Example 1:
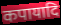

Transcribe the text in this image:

कपायादि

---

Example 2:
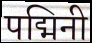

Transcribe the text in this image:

पद्मिनी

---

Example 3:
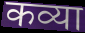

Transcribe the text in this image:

कव्या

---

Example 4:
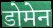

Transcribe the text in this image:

डोमेन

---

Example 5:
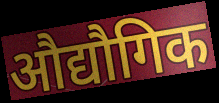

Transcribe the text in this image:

औद्यौगिक